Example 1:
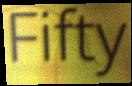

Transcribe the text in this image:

Fifty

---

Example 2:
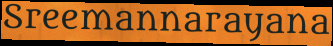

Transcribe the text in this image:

Sreemannarayana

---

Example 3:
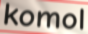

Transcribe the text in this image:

komol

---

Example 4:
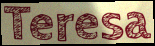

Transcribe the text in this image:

Teresa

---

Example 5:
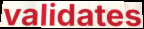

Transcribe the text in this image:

validates